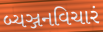
બ્યઞ્જનવિચારં